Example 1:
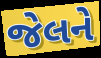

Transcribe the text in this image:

જેલને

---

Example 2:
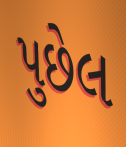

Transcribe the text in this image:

પુછેલ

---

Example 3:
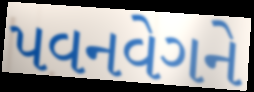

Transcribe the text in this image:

પવનવેગને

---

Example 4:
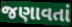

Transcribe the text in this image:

જણાવતાં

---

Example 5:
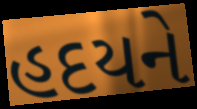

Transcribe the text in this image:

હદયને